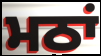
ਮਠਾਂ